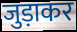
जुड़ाकर